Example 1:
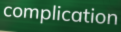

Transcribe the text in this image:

complication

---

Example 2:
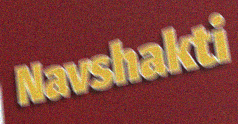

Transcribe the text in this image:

Navshakti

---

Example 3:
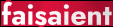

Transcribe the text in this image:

faisaient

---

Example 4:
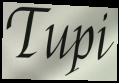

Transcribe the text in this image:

Tupi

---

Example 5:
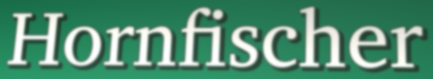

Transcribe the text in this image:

Hornfischer